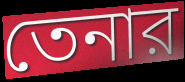
তেনার